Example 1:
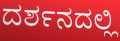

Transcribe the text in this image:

ದರ್ಶನದಲ್ಲಿ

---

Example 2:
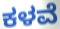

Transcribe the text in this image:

ಕಳವೆ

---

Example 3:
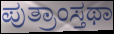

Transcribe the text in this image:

ಪುತ್ರಾಂಸ್ತಥಾ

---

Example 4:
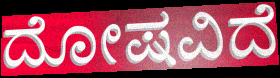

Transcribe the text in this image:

ದೋಷವಿದೆ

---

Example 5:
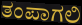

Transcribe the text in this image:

ತಂಪಾಗಲಿ